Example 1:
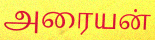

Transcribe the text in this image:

அரையன்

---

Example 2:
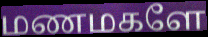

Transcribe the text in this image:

மணமகளே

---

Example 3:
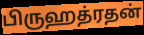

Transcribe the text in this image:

பிருஹத்ரதன்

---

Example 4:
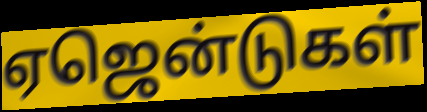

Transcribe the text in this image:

ஏஜென்டுகள்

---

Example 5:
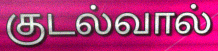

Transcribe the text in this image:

குடல்வால்